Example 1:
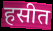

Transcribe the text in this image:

हसीत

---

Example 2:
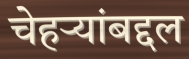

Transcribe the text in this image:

चेहऱ्यांबद्दल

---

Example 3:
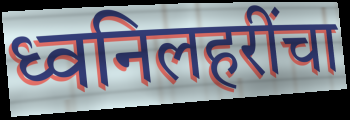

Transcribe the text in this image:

ध्वनिलहरींचा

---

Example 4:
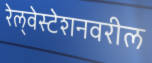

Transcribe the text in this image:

रेल्वेस्टेशनवरील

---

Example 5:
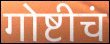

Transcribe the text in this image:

गोष्टीचं